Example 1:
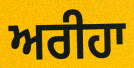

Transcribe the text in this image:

ਅਰੀਹਾ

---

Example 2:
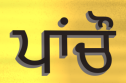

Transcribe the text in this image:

ਪਾਂਚੌ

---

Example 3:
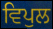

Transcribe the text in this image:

ਵਿਪੁਲ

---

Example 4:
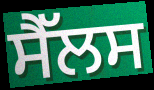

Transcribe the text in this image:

ਸੈੱਲਸ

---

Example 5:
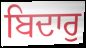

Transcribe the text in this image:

ਬਿਦਾਰੁ